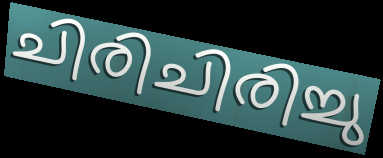
ചിരിചിരിച്ചു